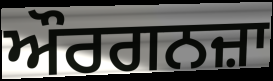
ਔਰਗਨਜ਼ਾ